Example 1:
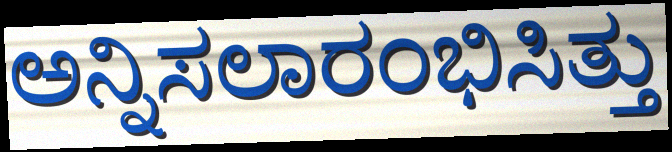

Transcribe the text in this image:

ಅನ್ನಿಸಲಾರಂಭಿಸಿತ್ತು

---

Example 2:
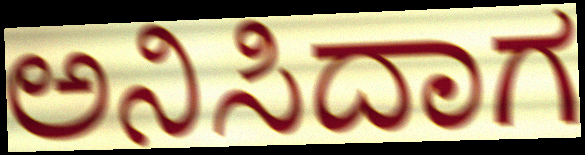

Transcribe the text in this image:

ಅನಿಸಿದಾಗ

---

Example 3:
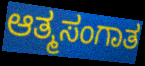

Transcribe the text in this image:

ಆತ್ಮಸಂಗಾತ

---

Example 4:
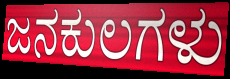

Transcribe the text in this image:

ಜನಕುಲಗಳು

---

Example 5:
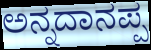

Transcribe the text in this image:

ಅನ್ನದಾನಪ್ಪ